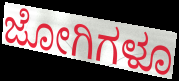
ಜೋಗಿಗಳೂ